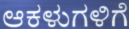
ಆಕಳುಗಳಿಗೆ